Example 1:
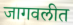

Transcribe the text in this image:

जागवलीत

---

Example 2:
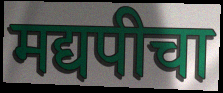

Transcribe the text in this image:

मद्यपीचा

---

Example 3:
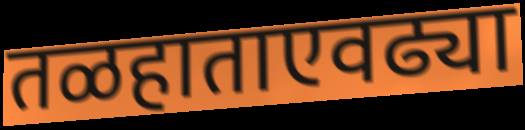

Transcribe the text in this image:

तळहाताएवढ्या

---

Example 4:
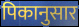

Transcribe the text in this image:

पिकानुसार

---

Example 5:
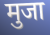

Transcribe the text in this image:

मुजा